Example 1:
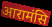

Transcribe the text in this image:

आरामंसि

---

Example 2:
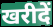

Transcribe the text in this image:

खरीदें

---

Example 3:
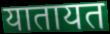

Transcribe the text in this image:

यातायत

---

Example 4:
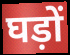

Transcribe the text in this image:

घड़ों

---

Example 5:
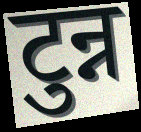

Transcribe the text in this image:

टुन्न